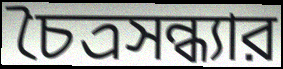
চৈত্রসন্ধ্যার